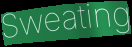
Sweating